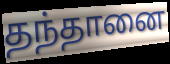
தந்தானை